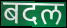
बदल